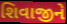
શિવાજીને